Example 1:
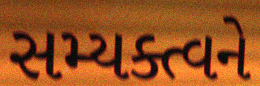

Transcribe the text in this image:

સમ્યક્ત્વને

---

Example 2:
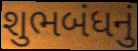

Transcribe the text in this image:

શુભબંધનું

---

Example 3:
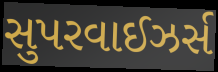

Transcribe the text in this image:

સુપરવાઈઝર્સ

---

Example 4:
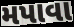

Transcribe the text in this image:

મપાવા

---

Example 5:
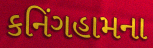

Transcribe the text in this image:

કનિંગહામના